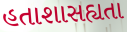
હતાશાસહ્યતા